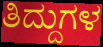
ತಿದ್ದುಗಳ